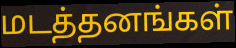
மடத்தனங்கள்